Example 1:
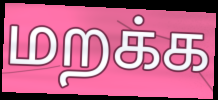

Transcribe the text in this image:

மறக்க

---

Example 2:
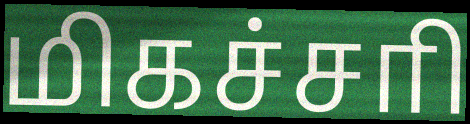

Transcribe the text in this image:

மிகச்சரி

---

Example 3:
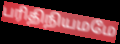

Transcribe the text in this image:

பரிதிநியமமே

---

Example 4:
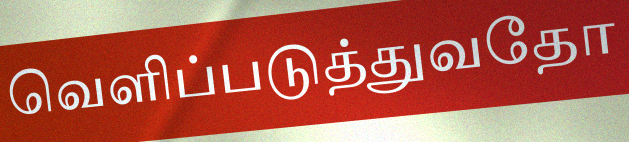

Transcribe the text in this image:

வெளிப்படுத்துவதோ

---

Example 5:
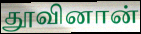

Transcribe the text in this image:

தூவினான்